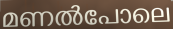
മണൽപോലെ